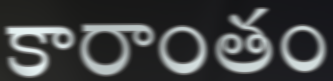
కారాంతం